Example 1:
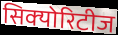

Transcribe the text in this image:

सिक्योरिटीज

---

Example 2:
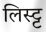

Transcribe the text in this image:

लिस्ट्ट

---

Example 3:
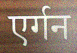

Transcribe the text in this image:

एर्गन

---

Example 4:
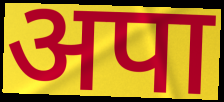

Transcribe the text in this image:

अपा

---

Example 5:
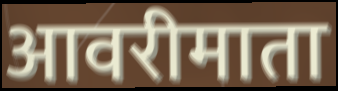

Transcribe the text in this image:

आवरीमाता